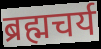
ब्रह्मचर्य